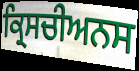
ਕ੍ਰਿਸਚੀਅਨਸ